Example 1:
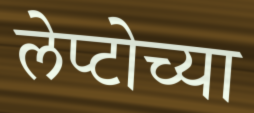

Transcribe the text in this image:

लेप्टोच्या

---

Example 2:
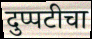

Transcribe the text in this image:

दुप्पटीचा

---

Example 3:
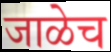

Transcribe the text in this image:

जाळेच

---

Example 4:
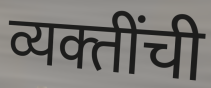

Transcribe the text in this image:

व्‍यक्‍तींची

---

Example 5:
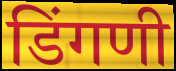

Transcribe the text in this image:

डिंगणी